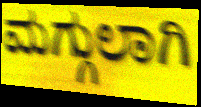
ಮಗ್ಗುಲಾಗಿ